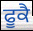
ਫੂਕੈ